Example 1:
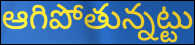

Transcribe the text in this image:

ఆగిపోతున్నట్టు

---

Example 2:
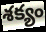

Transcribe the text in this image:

శక్యం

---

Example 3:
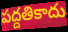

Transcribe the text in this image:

పద్దతికాదు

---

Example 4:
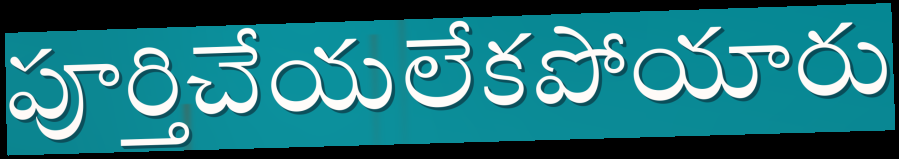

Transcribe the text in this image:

పూర్తిచేయలేకపోయారు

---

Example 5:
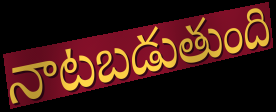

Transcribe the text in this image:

నాటబడుతుంది